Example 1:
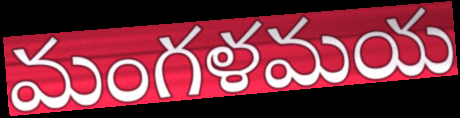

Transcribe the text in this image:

మంగళమయ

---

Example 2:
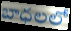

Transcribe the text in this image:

బాధలలో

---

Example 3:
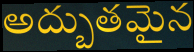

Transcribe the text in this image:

అద్బుతమైన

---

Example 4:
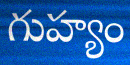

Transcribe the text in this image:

గుహ్యం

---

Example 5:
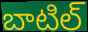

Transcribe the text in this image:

బాటిల్